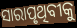
ସାରାପୃଥିବୀକୁ